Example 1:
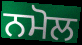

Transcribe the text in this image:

ਨਮੋਲ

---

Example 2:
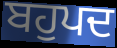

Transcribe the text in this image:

ਬਹੁਪਦ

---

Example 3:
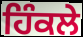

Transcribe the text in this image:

ਹਿੰਕਲੇ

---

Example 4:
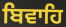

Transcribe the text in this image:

ਬਿਵਾਹਿ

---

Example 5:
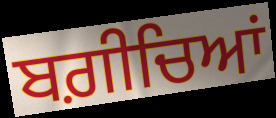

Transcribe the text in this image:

ਬਗ਼ੀਚਿਆਂ